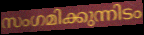
സംഗമിക്കുന്നിടം